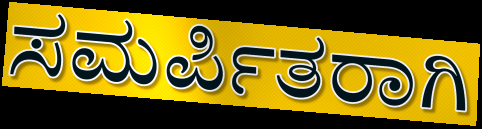
ಸಮರ್ಪಿತರಾಗಿ